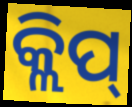
କ୍ଲିପ୍